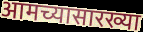
आमच्यासारख्या